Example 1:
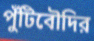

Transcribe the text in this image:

পুঁটিবৌদির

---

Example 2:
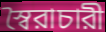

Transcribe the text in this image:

স্বৈরাচারী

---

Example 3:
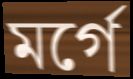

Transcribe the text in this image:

মর্গে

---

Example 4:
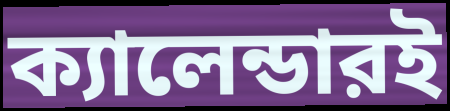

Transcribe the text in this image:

ক্যালেন্ডারই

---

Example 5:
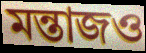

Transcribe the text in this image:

মন্তাজও